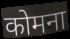
कोमना